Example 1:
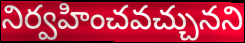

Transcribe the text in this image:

నిర్వహించవచ్చునని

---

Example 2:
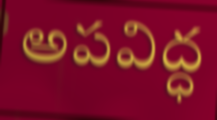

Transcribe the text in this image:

అపవిద్ధ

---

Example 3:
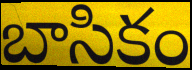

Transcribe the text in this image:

బాసికం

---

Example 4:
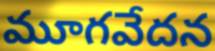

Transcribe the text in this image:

మూగవేదన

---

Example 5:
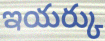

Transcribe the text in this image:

ఇయర్కు